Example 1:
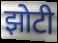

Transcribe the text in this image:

झोटी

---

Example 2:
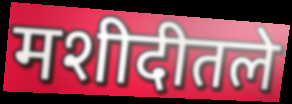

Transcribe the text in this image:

मशीदीतले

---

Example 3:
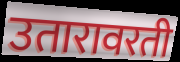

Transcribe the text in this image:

उतारावरती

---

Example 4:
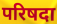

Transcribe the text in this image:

परिषदा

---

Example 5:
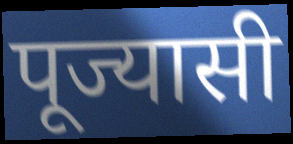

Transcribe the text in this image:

पूज्यासी